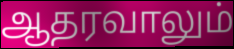
ஆதரவாலும்